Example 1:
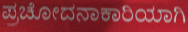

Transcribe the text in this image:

ಪ್ರಚೋದನಾಕಾರಿಯಾಗಿ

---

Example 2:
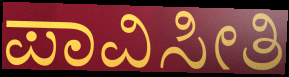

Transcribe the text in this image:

ಪಾವಿಸೀತಿ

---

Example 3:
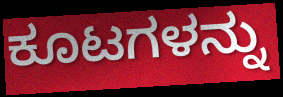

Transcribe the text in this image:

ಕೂಟಗಳನ್ನು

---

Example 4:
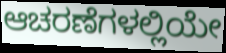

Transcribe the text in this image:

ಆಚರಣೆಗಳಲ್ಲಿಯೇ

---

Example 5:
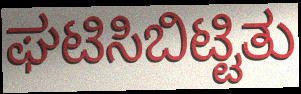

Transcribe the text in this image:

ಘಟಿಸಿಬಿಟ್ಟಿತು